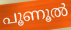
പൂണൂൽ